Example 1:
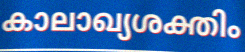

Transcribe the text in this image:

കാലാഖ്യശക്തിം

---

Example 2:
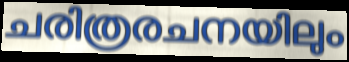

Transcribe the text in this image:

ചരിത്രരചനയിലും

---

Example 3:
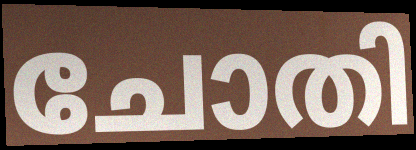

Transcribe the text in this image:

ചോതി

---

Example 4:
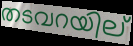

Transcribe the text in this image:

തടവറയില്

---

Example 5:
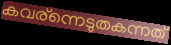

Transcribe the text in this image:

കവര്ന്നെടുതകന്നത്